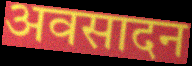
अवसादन